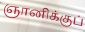
ஞானிக்குப்